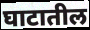
घाटातील